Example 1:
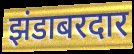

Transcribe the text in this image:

झंडाबरदार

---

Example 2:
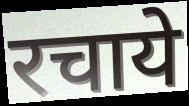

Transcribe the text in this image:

रचाये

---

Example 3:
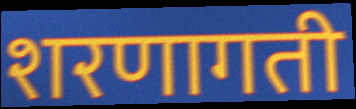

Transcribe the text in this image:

शरणागती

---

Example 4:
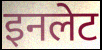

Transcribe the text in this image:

इनलेट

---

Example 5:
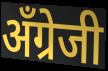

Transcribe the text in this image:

अँग्रेजी